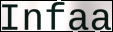
Infaa